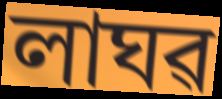
লাঘৱ